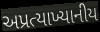
અપ્રત્યાખ્યાનીય